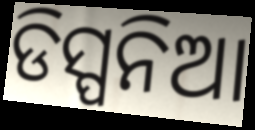
ଡିସ୍ପନିଆ